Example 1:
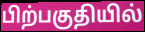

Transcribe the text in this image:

பிற்பகுதியில்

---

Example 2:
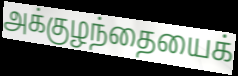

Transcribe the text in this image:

அக்குழந்தையைக்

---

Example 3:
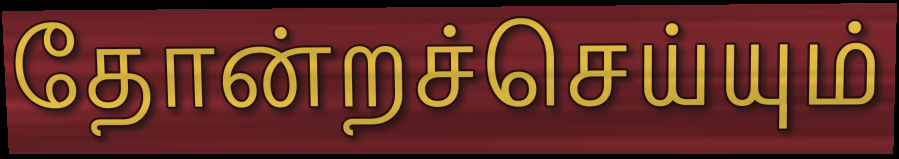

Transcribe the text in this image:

தோன்றச்செய்யும்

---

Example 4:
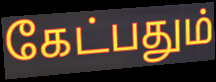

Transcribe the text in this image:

கேட்பதும்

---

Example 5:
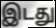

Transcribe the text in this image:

இடது